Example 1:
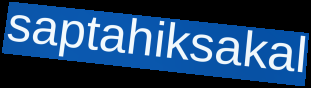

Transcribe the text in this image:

saptahiksakal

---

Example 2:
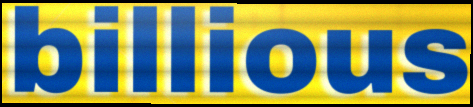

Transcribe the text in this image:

billious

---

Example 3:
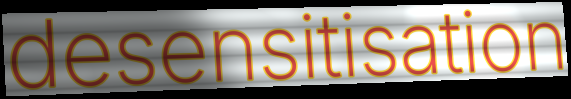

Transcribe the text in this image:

desensitisation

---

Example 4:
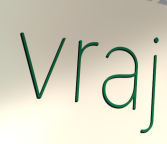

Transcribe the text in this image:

vraj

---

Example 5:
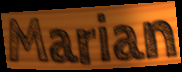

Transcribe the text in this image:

Marian